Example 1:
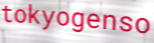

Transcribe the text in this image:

tokyogenso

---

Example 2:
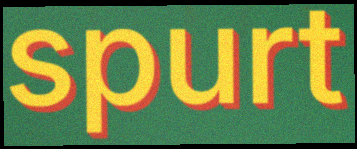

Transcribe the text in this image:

spurt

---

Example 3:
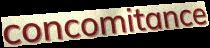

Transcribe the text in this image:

concomitance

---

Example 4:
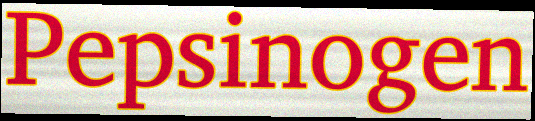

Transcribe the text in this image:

Pepsinogen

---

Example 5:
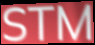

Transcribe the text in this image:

STM